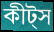
কীট্স